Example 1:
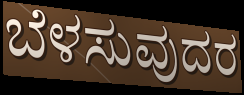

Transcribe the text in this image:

ಬೆಳಸುವುದರ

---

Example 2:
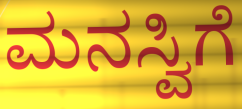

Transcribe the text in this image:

ಮನಸ್ವಿಗೆ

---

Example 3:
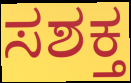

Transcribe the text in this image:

ಸಶಕ್ತ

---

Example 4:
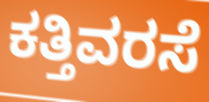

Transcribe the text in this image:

ಕತ್ತಿವರಸೆ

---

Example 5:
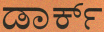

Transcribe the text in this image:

ಡಾರ್ಕ್